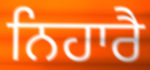
ਨਿਹਾਰੈ